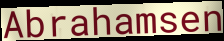
Abrahamsen